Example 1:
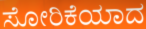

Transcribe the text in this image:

ಸೋರಿಕೆಯಾದ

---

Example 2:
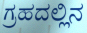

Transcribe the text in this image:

ಗ್ರಹದಲ್ಲಿನ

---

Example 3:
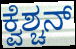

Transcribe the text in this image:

ಕ್ವೆಶ್ಚನ್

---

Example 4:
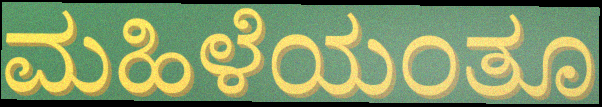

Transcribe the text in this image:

ಮಹಿಳೆಯಂತೂ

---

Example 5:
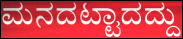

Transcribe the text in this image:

ಮನದಟ್ಟಾದದ್ದು